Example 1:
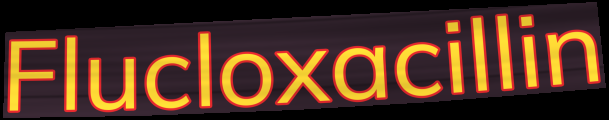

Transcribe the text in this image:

Flucloxacillin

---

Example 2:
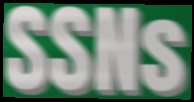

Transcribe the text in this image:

SSNs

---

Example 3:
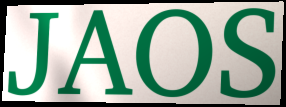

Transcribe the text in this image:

JAOS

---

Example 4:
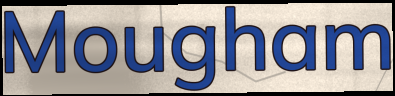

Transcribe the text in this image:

Mougham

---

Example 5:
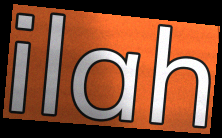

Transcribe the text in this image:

ilah